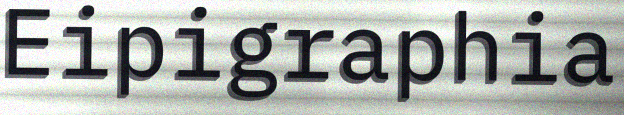
Eipigraphia